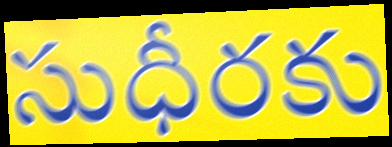
సుధీరకు